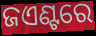
ଜଏଣ୍ଟରେ